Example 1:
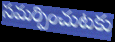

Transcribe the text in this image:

సమర్పించుటకు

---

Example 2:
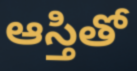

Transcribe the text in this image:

ఆస్తితో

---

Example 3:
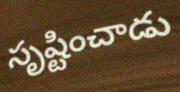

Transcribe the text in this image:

సృష్టించాడు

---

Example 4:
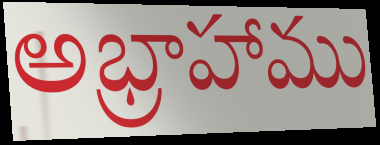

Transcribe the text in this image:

అభ్రాహాము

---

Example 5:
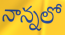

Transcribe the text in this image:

నాన్నలో